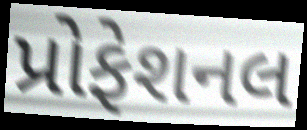
પ્રોફેશનલ